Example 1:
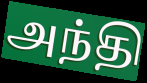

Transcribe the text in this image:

அந்தி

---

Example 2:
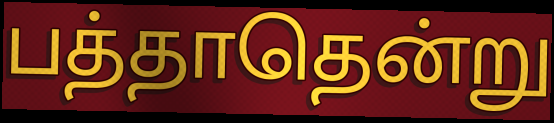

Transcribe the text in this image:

பத்தாதென்று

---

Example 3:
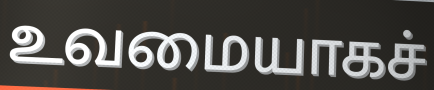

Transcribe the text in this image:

உவமையாகச்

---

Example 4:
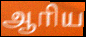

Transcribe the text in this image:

ஆரிய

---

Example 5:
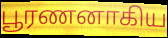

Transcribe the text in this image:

பூரணனாகிய